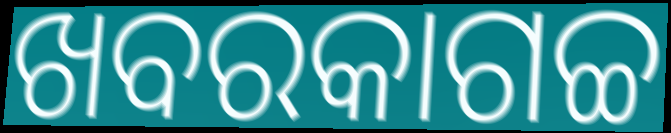
ଖବରକାଗଚ୍ଚ